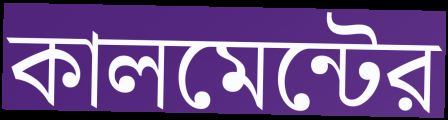
কালমেন্টের